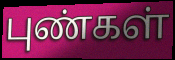
புண்கள்